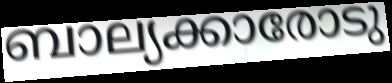
ബാല്യക്കാരോടു